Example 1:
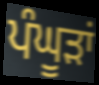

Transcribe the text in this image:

ਪੰਘੂੜਾਂ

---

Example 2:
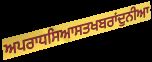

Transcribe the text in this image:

ਅਪਰਾਧਸਿਆਸਤਖਬਰਾਂਦੁਨੀਆ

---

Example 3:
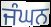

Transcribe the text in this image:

ਜੰਘਨ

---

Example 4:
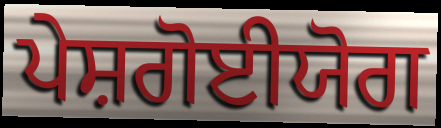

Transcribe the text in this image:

ਪੇਸ਼ਗੋਈਯੋਗ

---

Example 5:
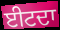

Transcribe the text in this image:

ਈਟਦਾ